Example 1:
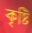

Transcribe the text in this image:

কৃষ্টি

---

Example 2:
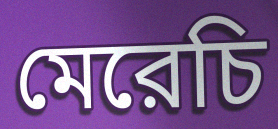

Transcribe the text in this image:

মেরেচি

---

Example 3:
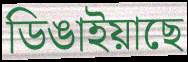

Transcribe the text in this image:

ডিঙাইয়াছে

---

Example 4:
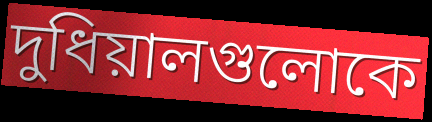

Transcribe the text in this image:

দুধিয়ালগুলোকে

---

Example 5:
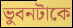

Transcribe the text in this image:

ভুবনটাকে